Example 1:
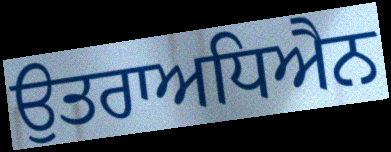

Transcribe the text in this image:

ਉਤਰਾਅਧਿਐਨ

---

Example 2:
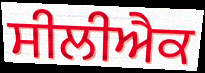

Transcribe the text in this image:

ਸੀਲੀਐਕ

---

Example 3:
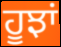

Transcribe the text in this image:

ਹੂਝਾਂ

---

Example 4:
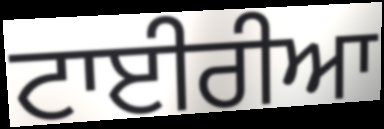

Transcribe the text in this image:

ਟਾਈਰੀਆ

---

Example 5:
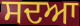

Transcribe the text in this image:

ਸਦਆ